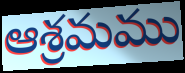
ఆశ్రమము